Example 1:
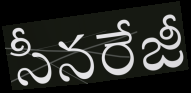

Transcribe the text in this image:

సీనరేజీ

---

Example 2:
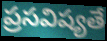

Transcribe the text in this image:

ప్రసవిష్యతే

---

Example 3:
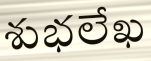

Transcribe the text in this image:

శుభలేఖ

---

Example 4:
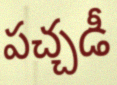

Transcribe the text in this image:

పచ్చడీ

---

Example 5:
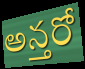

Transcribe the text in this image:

అన్తరో